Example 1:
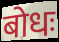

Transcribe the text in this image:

बोधः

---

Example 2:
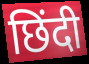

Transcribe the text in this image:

छिंदी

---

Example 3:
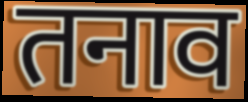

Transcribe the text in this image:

तनाव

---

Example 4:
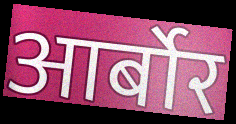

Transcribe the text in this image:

आर्बोर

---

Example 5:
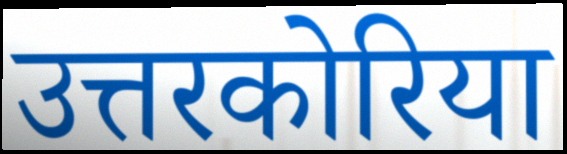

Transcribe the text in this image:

उत्तरकोरिया